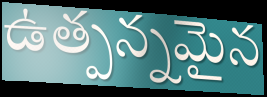
ఉత్పన్నమైన